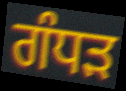
ਗੰਧੜ